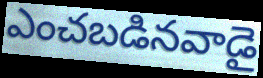
ఎంచబడినవాడై